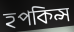
হপকিন্স